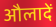
औलादें